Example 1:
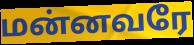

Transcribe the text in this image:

மன்னவரே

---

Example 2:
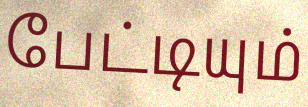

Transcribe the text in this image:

பேட்டியும்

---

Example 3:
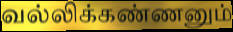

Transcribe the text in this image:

வல்லிக்கண்ணனும்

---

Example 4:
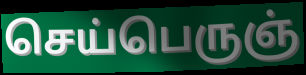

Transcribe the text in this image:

செய்பெருஞ்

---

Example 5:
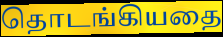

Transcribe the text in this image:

தொடங்கியதை